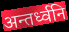
अन्तर्ध्वनि